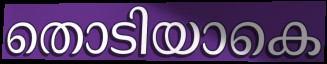
തൊടിയാകെ